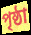
পৃষ্ঠা